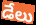
డేలు